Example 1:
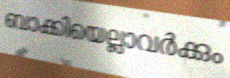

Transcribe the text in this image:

ബാക്കിയെല്ലാവർക്കും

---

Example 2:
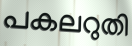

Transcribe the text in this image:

പകലറുതി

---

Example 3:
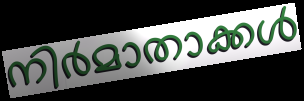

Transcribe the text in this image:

നിർമാതാക്കൾ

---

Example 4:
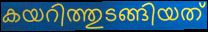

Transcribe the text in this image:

കയറിത്തുടങ്ങിയത്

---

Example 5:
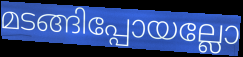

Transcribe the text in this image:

മടങ്ങിപ്പോയല്ലോ